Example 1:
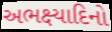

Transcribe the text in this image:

અભક્ષ્યાદિનો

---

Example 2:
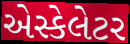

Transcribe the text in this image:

એસ્કેલેટર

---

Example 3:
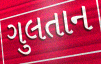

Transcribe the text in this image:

ગુલતાન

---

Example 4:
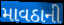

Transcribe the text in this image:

માવઠાની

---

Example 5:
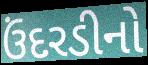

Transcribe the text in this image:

ઉંદરડીનો